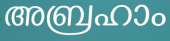
അബ്രഹാം